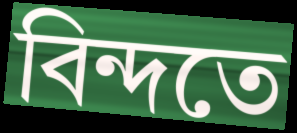
বিন্দতে